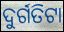
ଦୁର୍ଗତିଟା